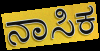
ನಾಸಿಕ